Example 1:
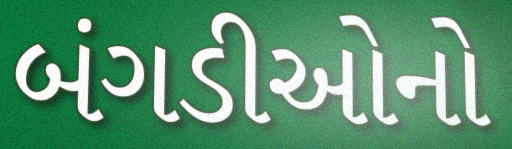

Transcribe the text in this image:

બંગડીઓનો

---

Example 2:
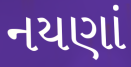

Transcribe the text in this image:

નયણાં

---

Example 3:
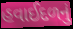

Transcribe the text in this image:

હવાઈદળનું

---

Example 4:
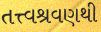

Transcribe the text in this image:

તત્ત્વશ્રવણથી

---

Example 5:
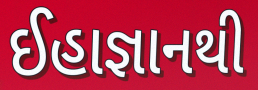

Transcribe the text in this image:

ઈહાજ્ઞાનથી